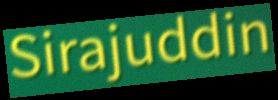
Sirajuddin